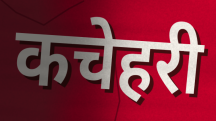
कचेहरी